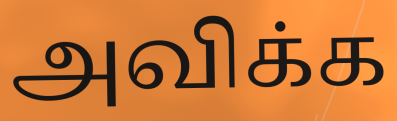
அவிக்க